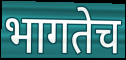
भागतेच